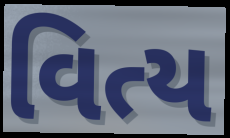
વિત્ય